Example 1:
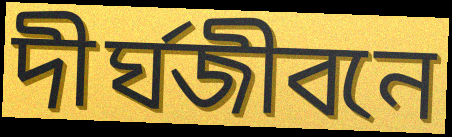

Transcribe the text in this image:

দীর্ঘজীবনে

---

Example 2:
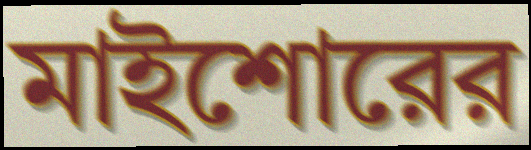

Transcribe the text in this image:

মাইশোরের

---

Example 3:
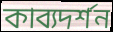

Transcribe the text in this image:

কাব্যদর্শন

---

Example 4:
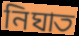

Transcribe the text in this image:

নিঘাত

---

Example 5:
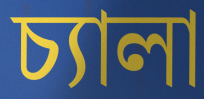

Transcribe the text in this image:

চ্যালা